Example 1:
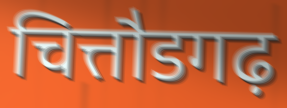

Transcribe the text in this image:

चित्तौडगढ़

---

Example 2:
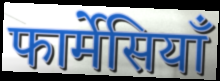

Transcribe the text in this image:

फार्मेसियाँ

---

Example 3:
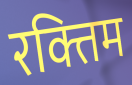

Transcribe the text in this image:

रक्तिम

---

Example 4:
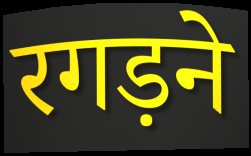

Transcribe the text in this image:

रगड़ने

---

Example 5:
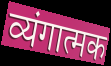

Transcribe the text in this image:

व्यंगात्मक